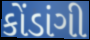
કોંડાંગી